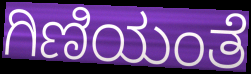
ಗಿಣಿಯಂತೆ